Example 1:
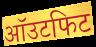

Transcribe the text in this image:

ऑउटफिट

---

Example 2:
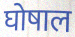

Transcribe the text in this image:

घोषाल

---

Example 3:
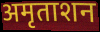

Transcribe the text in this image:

अमृताशन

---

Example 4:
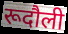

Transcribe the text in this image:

रूदौली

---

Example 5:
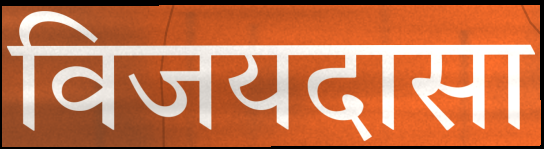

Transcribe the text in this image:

विजयदासा